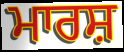
ਮਾਰਸ਼